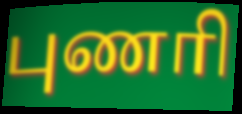
புணரி